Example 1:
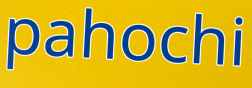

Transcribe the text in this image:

pahochi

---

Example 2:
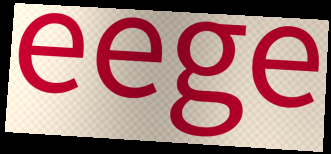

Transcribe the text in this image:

eege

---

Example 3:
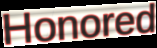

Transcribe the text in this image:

Honored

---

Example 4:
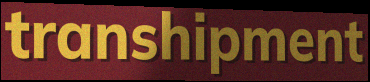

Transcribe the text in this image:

transhipment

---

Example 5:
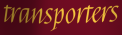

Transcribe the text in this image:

transporters